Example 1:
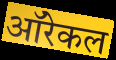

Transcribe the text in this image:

ऑरेकल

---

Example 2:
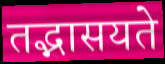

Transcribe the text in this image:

तद्भासयते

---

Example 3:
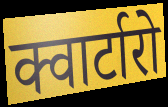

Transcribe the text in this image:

क्वार्टारो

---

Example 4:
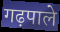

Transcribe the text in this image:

गढ़पाले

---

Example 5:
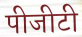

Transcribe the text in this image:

पीजीटी